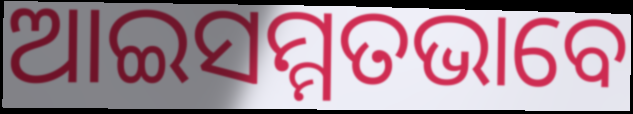
ଆଇସମ୍ମତଭାବେ